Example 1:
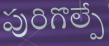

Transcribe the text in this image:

పురిగొల్పే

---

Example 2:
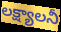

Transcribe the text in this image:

లక్ష్యాలనీ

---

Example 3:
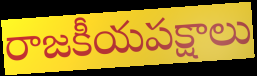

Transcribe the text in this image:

రాజకీయపక్షాలు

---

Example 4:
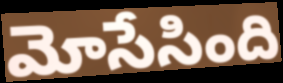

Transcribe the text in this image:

మోసేసింది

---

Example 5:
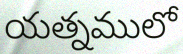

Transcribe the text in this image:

యత్నములో